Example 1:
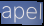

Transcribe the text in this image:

apel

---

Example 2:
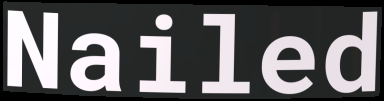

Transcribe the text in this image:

Nailed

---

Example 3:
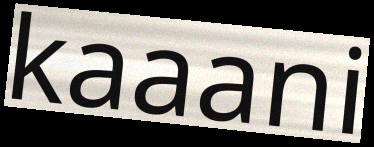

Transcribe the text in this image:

kaaani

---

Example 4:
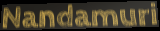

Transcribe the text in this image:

Nandamuri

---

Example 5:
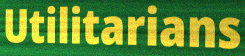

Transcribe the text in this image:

Utilitarians